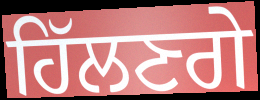
ਹਿੱਲਣਗੇ